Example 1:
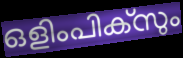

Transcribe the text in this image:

ഒളിംപിക്സും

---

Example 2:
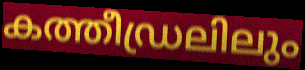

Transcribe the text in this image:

കത്തീഡ്രലിലും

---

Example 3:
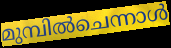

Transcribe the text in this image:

മുമ്പിൽചെന്നാൾ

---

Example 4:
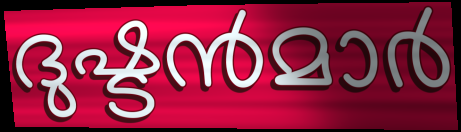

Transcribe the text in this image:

ദുഷ്ടൻമാർ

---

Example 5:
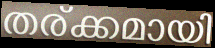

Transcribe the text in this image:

തര്ക്കമായി